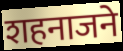
शहनाजने